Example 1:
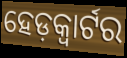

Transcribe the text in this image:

ହେଡ଼କ୍ୱାର୍ଟର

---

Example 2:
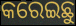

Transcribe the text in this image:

କରେଇଛୁ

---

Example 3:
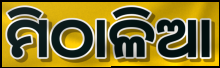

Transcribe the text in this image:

ମିଠାଳିଆ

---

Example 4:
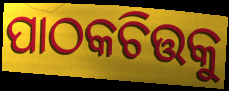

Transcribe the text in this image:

ପାଠକଚିତ୍ତକୁ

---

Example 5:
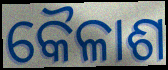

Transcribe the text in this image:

କୈଳାଶ